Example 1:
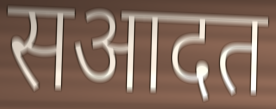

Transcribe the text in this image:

सआदत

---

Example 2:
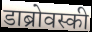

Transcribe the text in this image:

डाब्रोवस्की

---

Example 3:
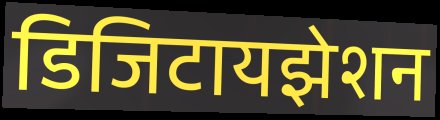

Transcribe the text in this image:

डिजिटायझेशन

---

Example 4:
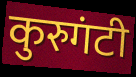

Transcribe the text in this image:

कुरुगंटी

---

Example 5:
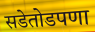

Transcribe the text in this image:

सडेतोडपणा